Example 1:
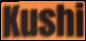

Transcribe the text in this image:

Kushi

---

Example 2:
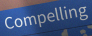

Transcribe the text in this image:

Compelling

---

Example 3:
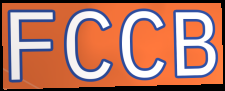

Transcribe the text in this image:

FCCB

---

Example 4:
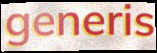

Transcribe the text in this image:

generis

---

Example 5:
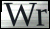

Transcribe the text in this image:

Wr